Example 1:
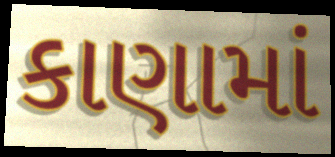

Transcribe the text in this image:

કાણામાં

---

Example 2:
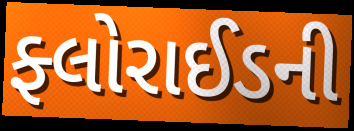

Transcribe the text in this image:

ફ્લોરાઈડની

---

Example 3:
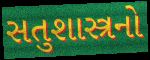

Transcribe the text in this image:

સતુશાસ્ત્રનો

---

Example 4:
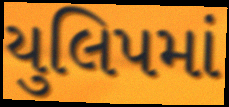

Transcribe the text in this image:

યુલિપમાં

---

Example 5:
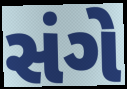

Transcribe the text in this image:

સંગે